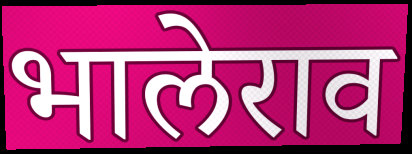
भालेराव